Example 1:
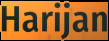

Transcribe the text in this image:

Harijan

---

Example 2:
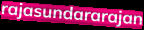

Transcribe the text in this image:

rajasundararajan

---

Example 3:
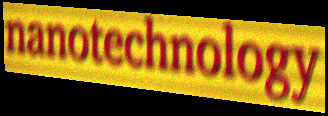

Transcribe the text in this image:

nanotechnology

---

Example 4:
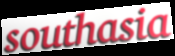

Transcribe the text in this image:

southasia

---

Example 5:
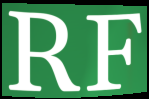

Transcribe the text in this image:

RF